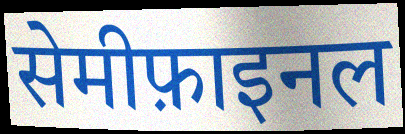
सेमीफ़ाइनल